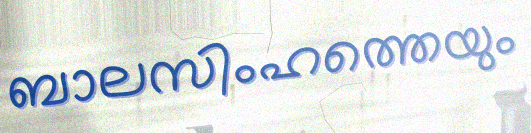
ബാലസിംഹത്തെയും